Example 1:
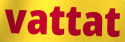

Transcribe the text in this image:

vattat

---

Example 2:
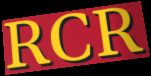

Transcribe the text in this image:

RCR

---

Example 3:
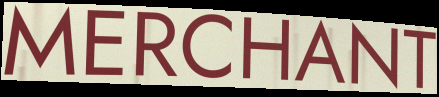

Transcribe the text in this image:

MERCHANT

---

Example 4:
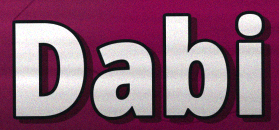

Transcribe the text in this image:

Dabi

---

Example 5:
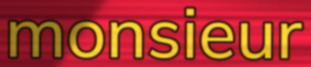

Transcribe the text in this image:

monsieur